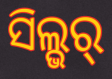
ସିଲ୍ଭର୍